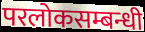
परलोकसम्बन्धी